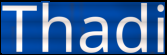
Thadi